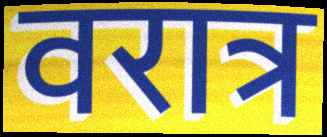
वरात्र